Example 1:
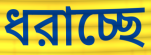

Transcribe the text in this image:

ধরাচ্ছে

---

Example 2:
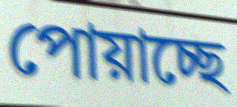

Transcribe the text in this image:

পোয়াচ্ছে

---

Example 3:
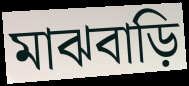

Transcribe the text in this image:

মাঝবাড়ি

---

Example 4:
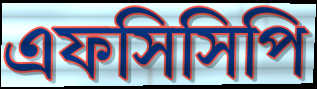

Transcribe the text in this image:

এফসিসিপি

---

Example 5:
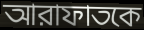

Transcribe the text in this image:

আরাফাতকে